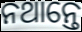
ନଥାନ୍ତେ